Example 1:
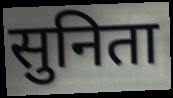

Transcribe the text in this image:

सुनिता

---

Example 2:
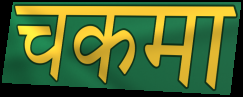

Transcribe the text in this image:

चकमा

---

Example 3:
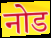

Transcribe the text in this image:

नोड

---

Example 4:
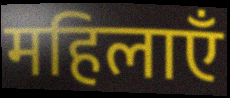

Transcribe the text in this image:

महिलाएँ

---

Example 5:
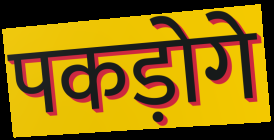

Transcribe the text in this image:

पकड़ोगे